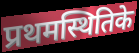
प्रथमस्थितिके